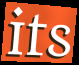
its